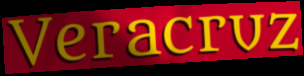
Veracruz